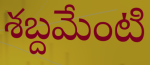
శబ్దమేంటి